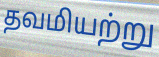
தவமியற்று